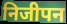
निजीपन